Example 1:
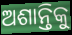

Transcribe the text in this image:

ଅଶାନ୍ତିକୁ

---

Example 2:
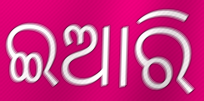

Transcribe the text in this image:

ଇଆରି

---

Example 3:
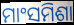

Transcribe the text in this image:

ମାଂସମିଶା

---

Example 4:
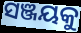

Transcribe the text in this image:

ସଞ୍ଜୟକୁ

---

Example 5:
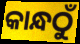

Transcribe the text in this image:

କାନ୍ଧଠୁଁ